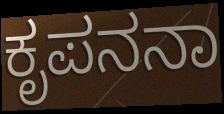
ಕೃಪನನಾ